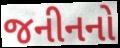
જનીનનો